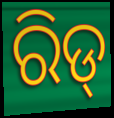
ରିଡ୍